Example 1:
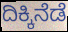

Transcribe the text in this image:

ದಿಕ್ಕಿನೆಡೆ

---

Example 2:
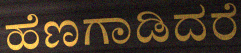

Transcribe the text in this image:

ಹೆಣಗಾಡಿದರೆ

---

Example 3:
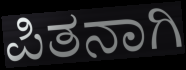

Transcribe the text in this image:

ಪಿತನಾಗಿ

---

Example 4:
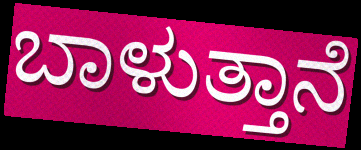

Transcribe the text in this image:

ಬಾಳುತ್ತಾನೆ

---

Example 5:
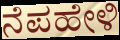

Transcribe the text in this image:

ನೆಪಹೇಳಿ